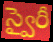
స్వైరీ